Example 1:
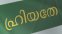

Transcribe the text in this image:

ഹ്രിയതേ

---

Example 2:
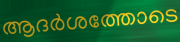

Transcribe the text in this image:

ആദർശത്തോടെ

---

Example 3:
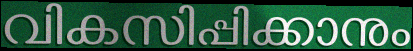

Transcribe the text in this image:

വികസിപ്പിക്കാനും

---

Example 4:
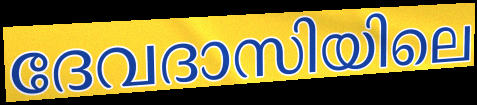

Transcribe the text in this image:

ദേവദാസിയിലെ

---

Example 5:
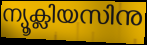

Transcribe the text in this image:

ന്യൂക്ലിയസിനു